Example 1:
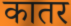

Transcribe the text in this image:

कातर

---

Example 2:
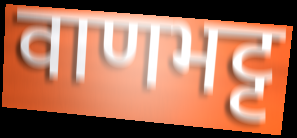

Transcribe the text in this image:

वाणभट्ट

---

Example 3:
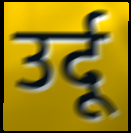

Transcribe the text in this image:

उर्दू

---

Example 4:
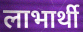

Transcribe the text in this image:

लाभार्थी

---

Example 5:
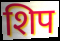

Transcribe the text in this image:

शिप